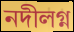
নদীলগ্ন